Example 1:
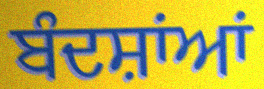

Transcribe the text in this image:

ਬੰਦਸ਼ਾਂਆਂ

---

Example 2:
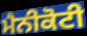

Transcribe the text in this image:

ਮੈਨੀਕੋਟੀ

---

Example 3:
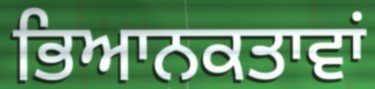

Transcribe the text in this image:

ਭਿਆਨਕਤਾਵਾਂ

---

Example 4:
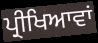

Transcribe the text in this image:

ਪ੍ਰੀਖਿਆਵਾਂ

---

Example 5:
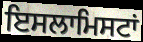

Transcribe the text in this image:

ਇਸਲਾਮਿਸਟਾਂ